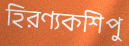
হিরণ্যকশিপু